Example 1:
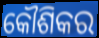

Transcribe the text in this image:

କୌଶିକର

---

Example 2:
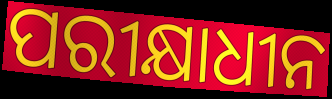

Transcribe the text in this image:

ପରୀକ୍ଷାଧୀନ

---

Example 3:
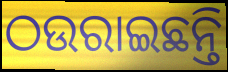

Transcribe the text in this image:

ଠଉରାଇଛନ୍ତି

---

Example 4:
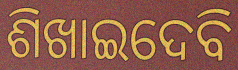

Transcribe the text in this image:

ଶିଖାଇଦେବି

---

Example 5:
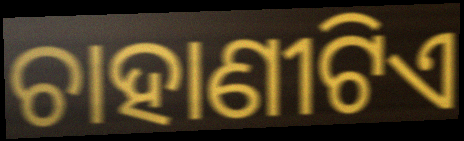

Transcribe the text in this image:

ଚାହାଣୀଟିଏ